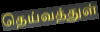
தெய்வத்துள்